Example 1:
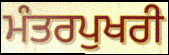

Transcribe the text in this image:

ਮੰਤਰਪੁਖਰੀ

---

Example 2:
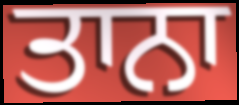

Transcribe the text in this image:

ਤਾਨਾ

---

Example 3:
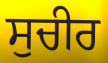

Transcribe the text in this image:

ਸੁਚੀਰ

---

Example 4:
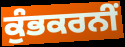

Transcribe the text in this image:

ਕੁੰਭਕਰਨੀਂ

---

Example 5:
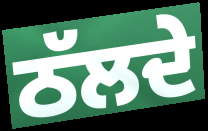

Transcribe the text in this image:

ਠੱਲਦੇ